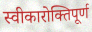
स्वीकारोक्तिपूर्ण